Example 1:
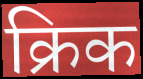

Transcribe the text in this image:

क्रिक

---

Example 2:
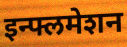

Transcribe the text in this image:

इन्फ्लमेशन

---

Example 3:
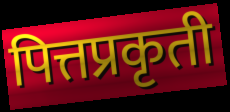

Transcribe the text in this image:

पित्तप्रकृती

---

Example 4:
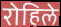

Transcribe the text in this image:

रोहिले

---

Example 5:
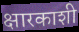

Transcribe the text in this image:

क्षारकाशी